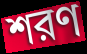
শরণ